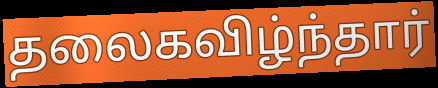
தலைகவிழ்ந்தார்